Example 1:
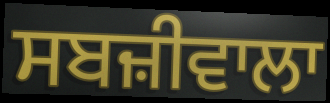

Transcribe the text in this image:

ਸਬਜ਼ੀਵਾਲਾ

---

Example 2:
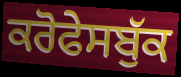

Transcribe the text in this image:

ਕਰੋਫੇਸਬੁੱਕ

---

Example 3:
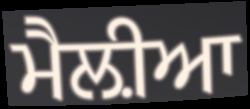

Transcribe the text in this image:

ਮੈਲ਼ੀਆ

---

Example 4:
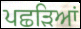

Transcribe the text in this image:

ਪਛੜਿਆਂ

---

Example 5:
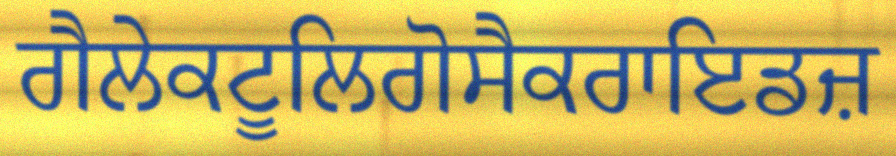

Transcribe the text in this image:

ਗੈਲੇਕਟੂਲਿਗੋਸੈਕਰਾਇਡਜ਼